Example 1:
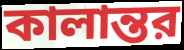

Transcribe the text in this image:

কালান্তর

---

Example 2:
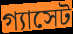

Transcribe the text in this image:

গ্যাসেট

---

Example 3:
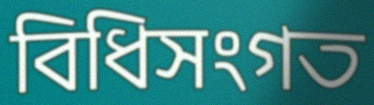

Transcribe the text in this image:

বিধিসংগত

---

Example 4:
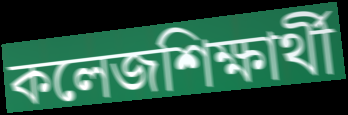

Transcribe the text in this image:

কলেজশিক্ষার্থী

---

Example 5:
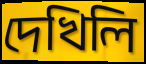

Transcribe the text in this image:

দেখিলি